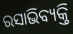
ରସାଭିବ୍ୟକ୍ତି